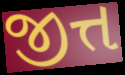
જીત્ત